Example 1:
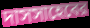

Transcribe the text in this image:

দাসসাহেবের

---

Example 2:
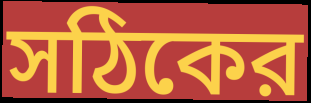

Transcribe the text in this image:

সঠিকের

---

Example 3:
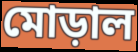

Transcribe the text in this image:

মোড়াল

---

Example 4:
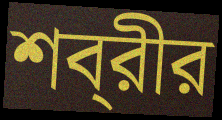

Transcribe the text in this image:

শব্‌রীর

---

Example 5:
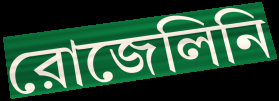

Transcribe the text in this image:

রোজেলিনি